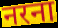
नरना